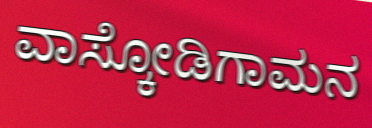
ವಾಸ್ಕೋಡಿಗಾಮನ